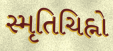
સ્મૃતિચિહ્નો